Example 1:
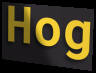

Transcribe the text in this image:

Hog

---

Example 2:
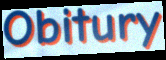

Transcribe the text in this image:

Obitury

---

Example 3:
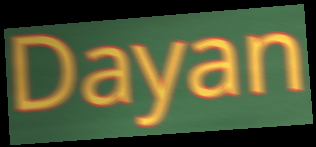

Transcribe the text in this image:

Dayan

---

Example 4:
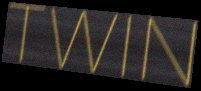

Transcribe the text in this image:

TWIN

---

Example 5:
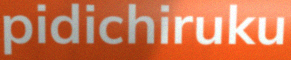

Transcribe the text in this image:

pidichiruku